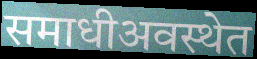
समाधीअवस्थेत